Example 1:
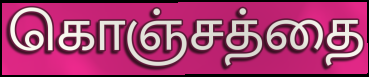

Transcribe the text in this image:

கொஞ்சத்தை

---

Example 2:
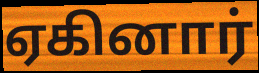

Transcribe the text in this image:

ஏகினார்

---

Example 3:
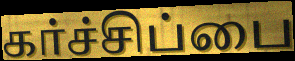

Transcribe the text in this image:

கர்ச்சிப்பை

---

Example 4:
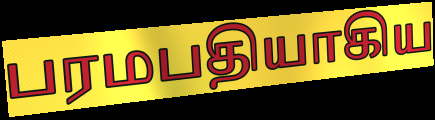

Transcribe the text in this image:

பரமபதியாகிய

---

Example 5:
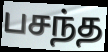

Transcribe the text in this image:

பசந்த